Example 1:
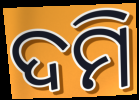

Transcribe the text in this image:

ଦମି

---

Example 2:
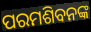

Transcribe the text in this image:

ପରମଶିବନଙ୍କ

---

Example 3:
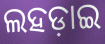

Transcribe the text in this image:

ଲହଡ଼ାଇ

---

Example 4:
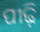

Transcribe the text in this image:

ପୀଢ଼ି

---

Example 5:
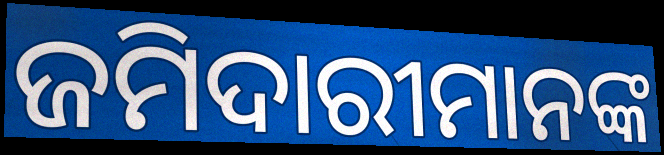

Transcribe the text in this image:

ଜମିଦାରୀମାନଙ୍କ